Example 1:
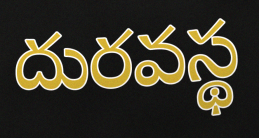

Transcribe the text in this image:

దురవస్థ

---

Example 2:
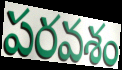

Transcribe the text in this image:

పరవశం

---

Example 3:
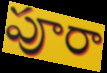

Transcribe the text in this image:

పూరా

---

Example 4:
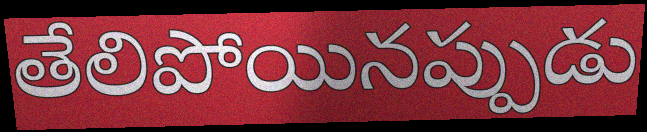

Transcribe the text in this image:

తేలిపోయినప్పుడు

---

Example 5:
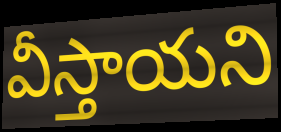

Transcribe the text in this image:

వీస్తాయని